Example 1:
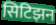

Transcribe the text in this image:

सिटिझन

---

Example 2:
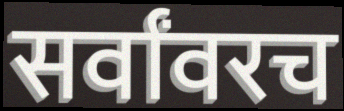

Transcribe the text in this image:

सर्वांवरच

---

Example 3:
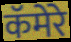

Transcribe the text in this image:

कॅमेरे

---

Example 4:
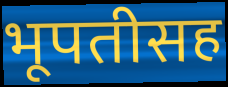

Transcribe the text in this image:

भूपतीसह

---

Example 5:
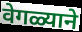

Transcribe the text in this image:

वेगळ्याने